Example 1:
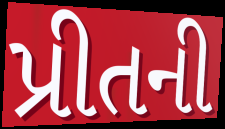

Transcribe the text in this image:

પ્રીતની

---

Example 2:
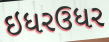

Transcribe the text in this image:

ઇધરઉધર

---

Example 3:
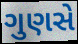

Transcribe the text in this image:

ગુણસે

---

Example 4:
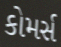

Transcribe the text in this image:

કોમર્સ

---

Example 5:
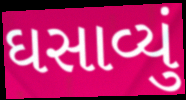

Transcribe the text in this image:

ઘસાવ્યું